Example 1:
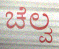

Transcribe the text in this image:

ಚೆಲ್ವ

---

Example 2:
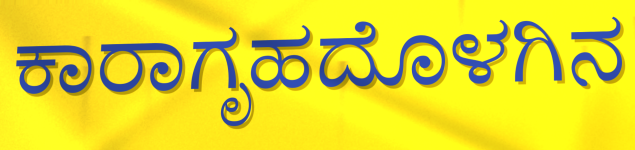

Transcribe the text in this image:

ಕಾರಾಗೃಹದೊಳಗಿನ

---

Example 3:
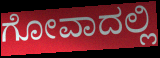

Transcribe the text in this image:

ಗೋವಾದಲ್ಲಿ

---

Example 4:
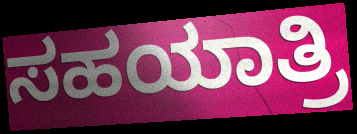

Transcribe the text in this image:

ಸಹಯಾತ್ರಿ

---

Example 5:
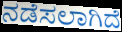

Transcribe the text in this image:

ನಡೆಸಲಾಗಿದೆ